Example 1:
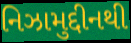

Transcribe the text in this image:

નિઝામુદ્દીનથી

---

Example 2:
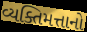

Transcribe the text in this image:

વ્યક્તિમત્તાનો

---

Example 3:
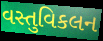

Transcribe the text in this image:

વસ્તુવિકલન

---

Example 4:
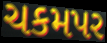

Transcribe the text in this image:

ચકમપર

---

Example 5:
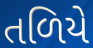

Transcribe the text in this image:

તળિયે